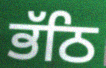
ਭੱਠਿ